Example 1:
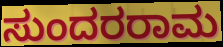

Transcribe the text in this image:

ಸುಂದರರಾಮ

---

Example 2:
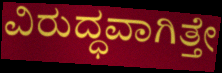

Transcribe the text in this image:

ವಿರುದ್ಧವಾಗಿತ್ತೇ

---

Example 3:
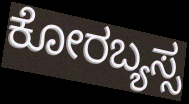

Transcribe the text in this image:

ಕೋರಬ್ಯಸ್ಸ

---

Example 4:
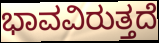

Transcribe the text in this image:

ಭಾವವಿರುತ್ತದೆ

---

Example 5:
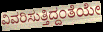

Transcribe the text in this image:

ವಿವರಿಸುತ್ತಿದ್ದಂತೆಯೇ